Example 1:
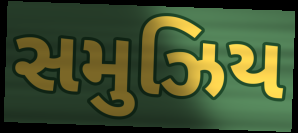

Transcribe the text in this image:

સમુઝિય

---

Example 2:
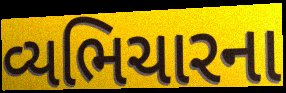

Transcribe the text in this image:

વ્યભિચારના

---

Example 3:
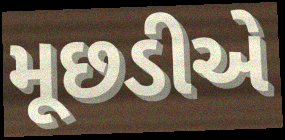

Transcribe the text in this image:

મૂછડીએ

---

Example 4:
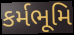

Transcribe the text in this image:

કર્મભૂમિ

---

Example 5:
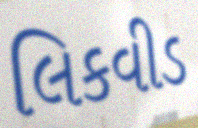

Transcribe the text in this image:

લિકવીડ